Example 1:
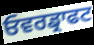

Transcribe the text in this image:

ਓਵਰਡ੍ਰਾਫਟ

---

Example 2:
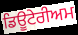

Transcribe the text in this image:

ਡਿਊਟੇਰੀਅਮ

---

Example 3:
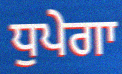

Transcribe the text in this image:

ਧੁਪੇਗਾ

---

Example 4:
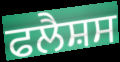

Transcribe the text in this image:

ਫਲੈਸ਼ਸ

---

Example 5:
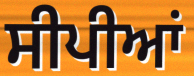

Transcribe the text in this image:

ਸੀਪੀਆਂ